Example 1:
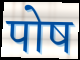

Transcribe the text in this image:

पोष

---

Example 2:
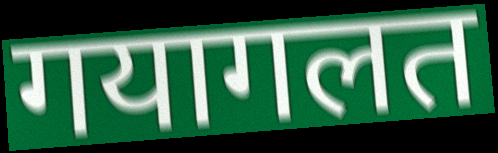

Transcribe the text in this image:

गयागलत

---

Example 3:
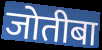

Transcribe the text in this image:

जोतीबा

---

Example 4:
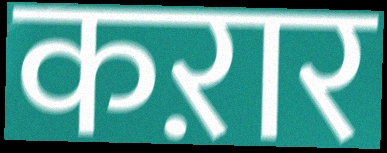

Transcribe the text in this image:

कऱार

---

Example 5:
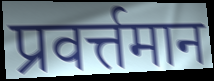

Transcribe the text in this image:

प्रवर्त्तमान